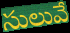
సులువే